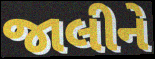
જાલીને